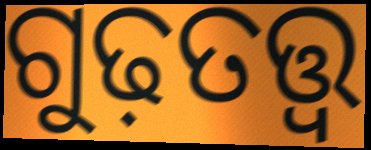
ଗୁଢ଼ତତ୍ତ୍ୱ